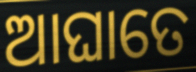
ଆଘାତେ